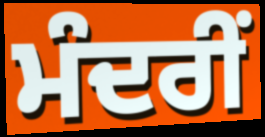
ਮੰਦਰੀਂ